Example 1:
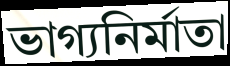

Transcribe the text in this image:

ভাগ্যনির্মাতা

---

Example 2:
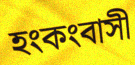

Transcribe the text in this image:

হংকংবাসী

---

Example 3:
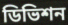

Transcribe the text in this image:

ডিভিশন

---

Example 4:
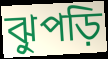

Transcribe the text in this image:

ঝুপড়ি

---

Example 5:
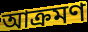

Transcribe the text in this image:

আক্রমণ